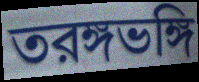
তরঙ্গভঙ্গি